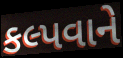
કલ્પવાને